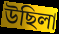
উছিলা